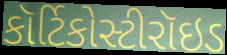
કૉર્ટિકોસ્ટીરૉઇડ